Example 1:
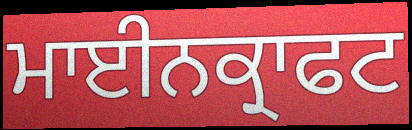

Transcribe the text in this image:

ਮਾਈਨਕ੍ਰਾਫਟ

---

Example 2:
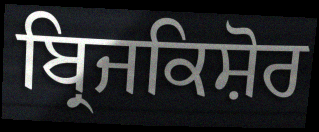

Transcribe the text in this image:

ਬ੍ਰਿਜਕਿਸ਼ੋਰ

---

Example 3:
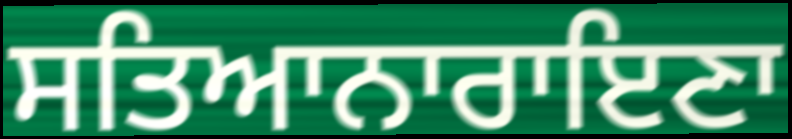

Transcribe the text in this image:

ਸਤਿਆਨਾਰਾਇਣਾ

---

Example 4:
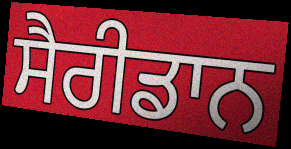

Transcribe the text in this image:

ਸੈਰੀਡਾਨ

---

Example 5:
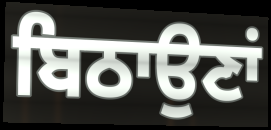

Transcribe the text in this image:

ਬਿਠਾਉਣਾਂ